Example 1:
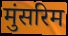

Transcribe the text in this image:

मुंसरिम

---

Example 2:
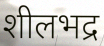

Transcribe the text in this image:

शीलभद्र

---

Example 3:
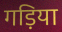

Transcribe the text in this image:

गड़िया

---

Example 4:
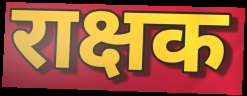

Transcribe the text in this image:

राक्षक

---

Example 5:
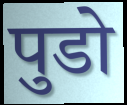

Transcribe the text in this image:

पुडो